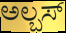
ಅಲ್ಬಸ್